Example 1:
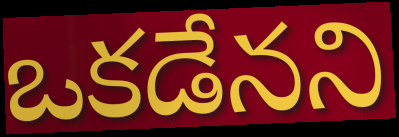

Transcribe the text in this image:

ఒకడేనని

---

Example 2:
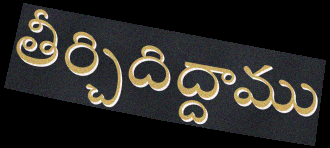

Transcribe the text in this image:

తీర్చిదిద్దాము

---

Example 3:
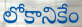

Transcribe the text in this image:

లోకానికేం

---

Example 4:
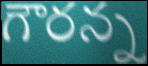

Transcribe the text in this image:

గౌరన్న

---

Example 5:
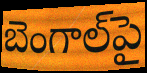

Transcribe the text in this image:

బెంగాల్‌పై